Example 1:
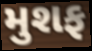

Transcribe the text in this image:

મુશફ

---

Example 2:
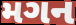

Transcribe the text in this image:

મગન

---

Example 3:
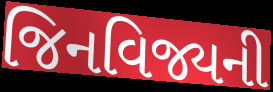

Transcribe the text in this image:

જિનવિજ્યની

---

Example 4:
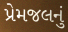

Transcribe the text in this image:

પ્રેમજલનું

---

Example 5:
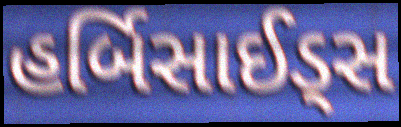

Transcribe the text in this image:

હર્બિસાઈડ્સ